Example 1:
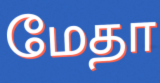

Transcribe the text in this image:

மேதா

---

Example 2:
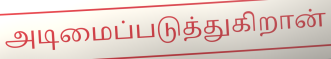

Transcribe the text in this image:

அடிமைப்படுத்துகிறான்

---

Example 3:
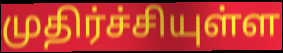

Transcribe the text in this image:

முதிர்ச்சியுள்ள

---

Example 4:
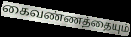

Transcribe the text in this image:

கைவண்ணத்தையும்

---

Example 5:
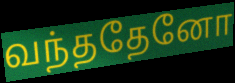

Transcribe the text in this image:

வந்ததேனோ